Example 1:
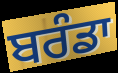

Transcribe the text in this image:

ਬਰੰਡਾ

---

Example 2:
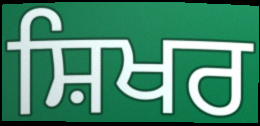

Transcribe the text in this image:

ਸ਼ਿਖਰ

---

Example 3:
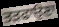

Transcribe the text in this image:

ਤੜਫਾਉਣਾ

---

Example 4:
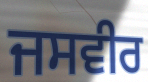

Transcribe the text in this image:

ਜਸਵੀਰ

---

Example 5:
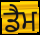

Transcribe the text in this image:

ਡੈਮ